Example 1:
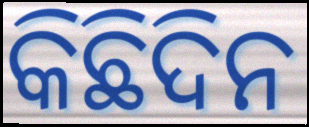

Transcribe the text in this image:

କିଛିଦିନ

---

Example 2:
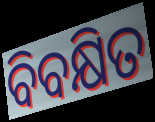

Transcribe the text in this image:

ବିବକ୍ଷିତ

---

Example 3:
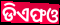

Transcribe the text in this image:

ଡିଏଫଓ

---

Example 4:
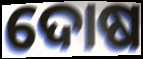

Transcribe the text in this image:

ଦୋଷ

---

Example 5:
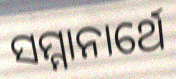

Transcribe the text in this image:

ସମ୍ମାନାର୍ଥେ